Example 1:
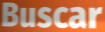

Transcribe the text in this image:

Buscar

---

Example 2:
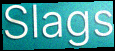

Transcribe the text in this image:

Slags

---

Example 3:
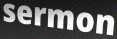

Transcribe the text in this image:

sermon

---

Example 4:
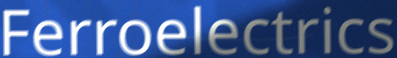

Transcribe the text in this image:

Ferroelectrics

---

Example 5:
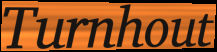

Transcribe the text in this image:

Turnhout